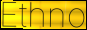
Ethno